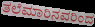
ತಲೆಮಾರಿನವರಿಂದ